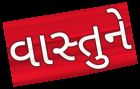
વાસ્તુને